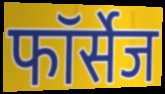
फॉर्सेज